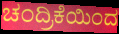
ಚಂದ್ರಿಕೆಯಿಂದ